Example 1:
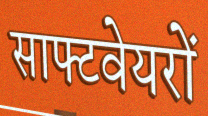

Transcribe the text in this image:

साफ्टवेयरों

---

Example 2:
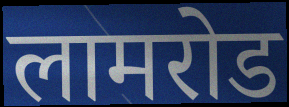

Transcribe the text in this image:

लामरोड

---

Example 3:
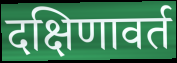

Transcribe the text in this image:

दक्षिणावर्त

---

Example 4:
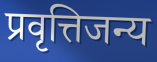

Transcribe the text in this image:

प्रवृत्तिजन्य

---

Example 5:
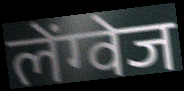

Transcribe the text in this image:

लेंग्वेज